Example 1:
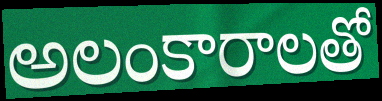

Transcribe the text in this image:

అలంకారాలతో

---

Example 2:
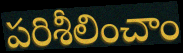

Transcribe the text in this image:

పరిశీలించాం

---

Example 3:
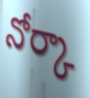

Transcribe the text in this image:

నోర్కా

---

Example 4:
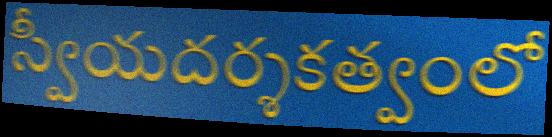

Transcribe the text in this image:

స్వీయదర్శకత్వంలో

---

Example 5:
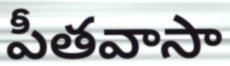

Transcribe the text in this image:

పీతవాసా